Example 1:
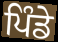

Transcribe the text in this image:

ਪਿੰਡੇ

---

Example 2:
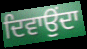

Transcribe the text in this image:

ਦਿਵਾਉਂਦਾ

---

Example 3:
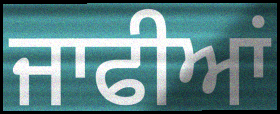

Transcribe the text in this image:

ਜਾਫੀਆਂ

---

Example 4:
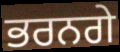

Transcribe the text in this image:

ਭਰਨਗੇ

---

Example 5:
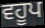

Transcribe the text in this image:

ਵਹੂਪ